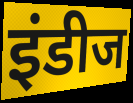
इंडीज